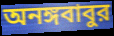
অনঙ্গবাবুর